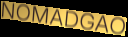
NOMADGAO